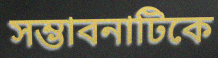
সম্ভাবনাটিকে